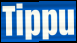
Tippu